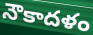
నౌకాదళం